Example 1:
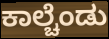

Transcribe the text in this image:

ಕಾಲ್ಚೆಂಡು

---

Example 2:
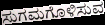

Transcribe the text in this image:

ಸುಗಮಗೊಳಿಸುವ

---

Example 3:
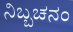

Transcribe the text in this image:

ನಿಬ್ಬಚನಂ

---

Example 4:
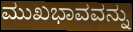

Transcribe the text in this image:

ಮುಖಭಾವವನ್ನು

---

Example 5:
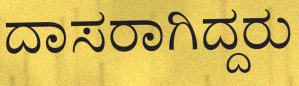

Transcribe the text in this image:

ದಾಸರಾಗಿದ್ದರು